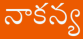
నాకన్య